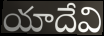
యాదేవి